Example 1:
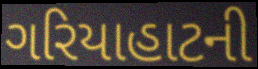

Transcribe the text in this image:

ગરિયાહાટની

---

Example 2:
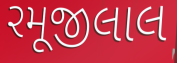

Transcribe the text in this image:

રમૂજીલાલ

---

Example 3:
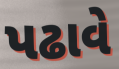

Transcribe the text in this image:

પઢાવે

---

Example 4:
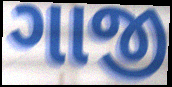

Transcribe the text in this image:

ગાજી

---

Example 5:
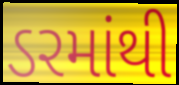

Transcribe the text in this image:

ડરમાંથી